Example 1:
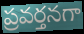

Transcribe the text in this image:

ప్రవర్తనగా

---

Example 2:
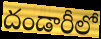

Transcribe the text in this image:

దండారీలో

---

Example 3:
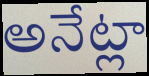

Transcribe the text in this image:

అనేట్లా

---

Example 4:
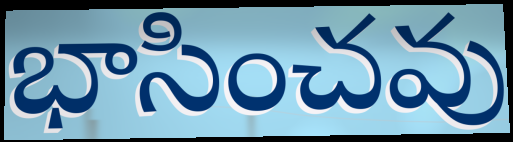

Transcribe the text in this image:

భాసించవు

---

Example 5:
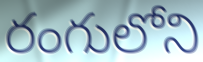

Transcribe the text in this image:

రంగులోని